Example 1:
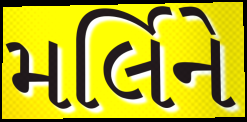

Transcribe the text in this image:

મર્લિને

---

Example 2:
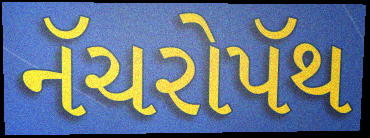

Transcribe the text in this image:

નૅચરોપૅથ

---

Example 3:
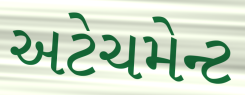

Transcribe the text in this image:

અટેચમેન્ટ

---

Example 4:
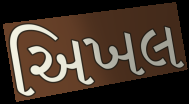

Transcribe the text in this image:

અિખલ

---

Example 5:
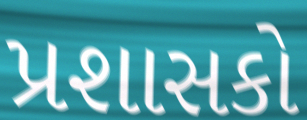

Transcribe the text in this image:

પ્રશાસકો